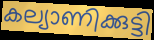
കല്യാണിക്കുട്ടി